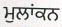
ਮੁਲਾਂਕਨ